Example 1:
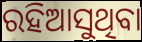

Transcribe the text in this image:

ରହିଆସୁଥିବା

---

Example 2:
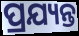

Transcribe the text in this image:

ପ୍ରଯ୍ୟନ୍ତ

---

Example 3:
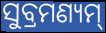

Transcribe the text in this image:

ସୁବ୍ରମଣ୍ୟମ୍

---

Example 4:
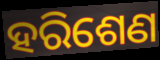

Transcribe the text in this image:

ହରିଶେଣ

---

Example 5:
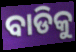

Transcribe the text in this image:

ବାଡିକୁ